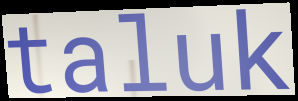
taluk